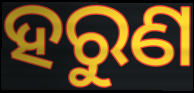
ହରୁଣ